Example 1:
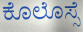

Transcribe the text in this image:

ಕೊಲೊಸ್ಸೆ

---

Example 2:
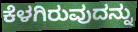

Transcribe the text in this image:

ಕೆಳಗಿರುವುದನ್ನು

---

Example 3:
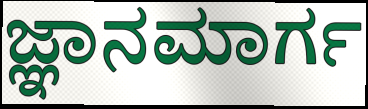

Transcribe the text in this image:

ಜ್ಞಾನಮಾರ್ಗ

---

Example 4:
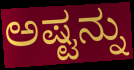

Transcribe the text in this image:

ಅಷ್ಟನ್ನು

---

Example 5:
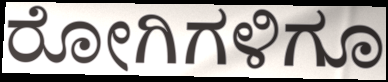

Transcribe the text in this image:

ರೋಗಿಗಳಿಗೂ